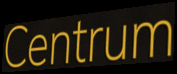
Centrum